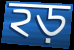
হড়